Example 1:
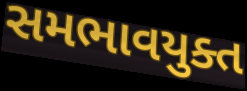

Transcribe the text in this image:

સમભાવયુક્ત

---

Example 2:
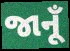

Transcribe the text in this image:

જાનૂઁ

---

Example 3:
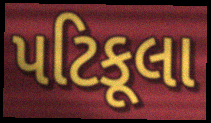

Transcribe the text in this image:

પટિકૂલા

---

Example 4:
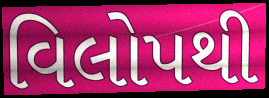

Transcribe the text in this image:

વિલોપથી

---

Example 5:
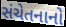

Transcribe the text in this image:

સંચેતનાનો